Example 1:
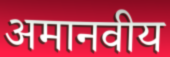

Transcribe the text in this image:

अमानवीय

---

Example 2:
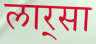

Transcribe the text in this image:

लार्सा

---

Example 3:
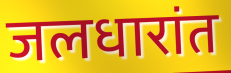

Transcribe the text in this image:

जलधारांत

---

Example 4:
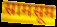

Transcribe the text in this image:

सामसूम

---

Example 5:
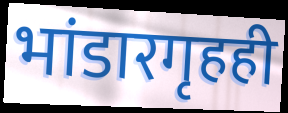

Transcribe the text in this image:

भांडारगृहही